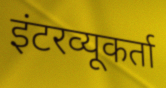
इंटरव्यूकर्ता